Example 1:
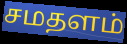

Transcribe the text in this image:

சமதளம்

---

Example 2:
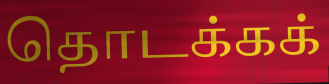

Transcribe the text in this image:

தொடக்கக்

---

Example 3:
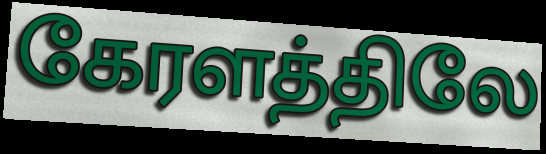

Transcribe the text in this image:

கேரளத்திலே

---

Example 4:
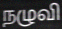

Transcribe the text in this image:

நழுவி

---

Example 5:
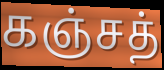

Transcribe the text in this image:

கஞ்சத்